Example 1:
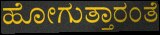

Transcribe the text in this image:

ಹೋಗುತ್ತಾರಂತೆ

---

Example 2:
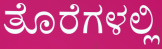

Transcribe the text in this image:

ತೊರೆಗಳಲ್ಲಿ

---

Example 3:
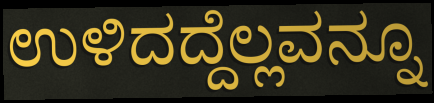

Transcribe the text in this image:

ಉಳಿದದ್ದೆಲ್ಲವನ್ನೂ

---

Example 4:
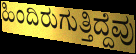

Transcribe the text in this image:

ಹಿಂದಿರುಗುತ್ತಿದ್ದೆವು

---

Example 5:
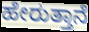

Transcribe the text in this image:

ಹೇರುತ್ತಾನೆ